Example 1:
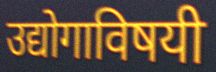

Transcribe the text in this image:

उद्योगाविषयी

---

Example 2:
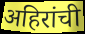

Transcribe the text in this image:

अहिरांची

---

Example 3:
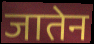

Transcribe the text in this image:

जातेन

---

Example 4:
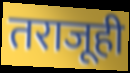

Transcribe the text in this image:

तराजूही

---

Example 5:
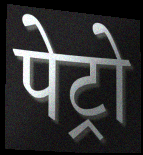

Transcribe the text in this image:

पेट्रो